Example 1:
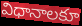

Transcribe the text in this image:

విధానాలకూ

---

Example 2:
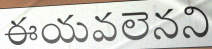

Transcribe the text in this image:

ఈయవలెనని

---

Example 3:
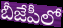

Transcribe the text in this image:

బీజేపీలో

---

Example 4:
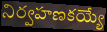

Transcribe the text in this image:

నిర్వహణకయ్యే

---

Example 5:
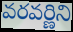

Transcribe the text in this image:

వరవర్ణిని